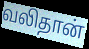
வலிதான்